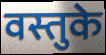
वस्तुके